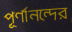
পূর্ণানন্দের